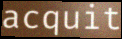
acquit